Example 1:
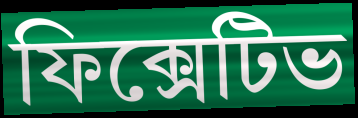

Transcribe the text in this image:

ফিক্সেটিভ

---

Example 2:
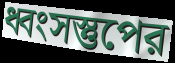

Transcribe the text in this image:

ধ্বংসস্তুপের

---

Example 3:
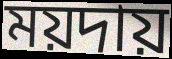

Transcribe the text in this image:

ময়দায়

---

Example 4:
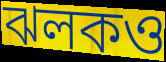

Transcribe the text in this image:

ঝলকও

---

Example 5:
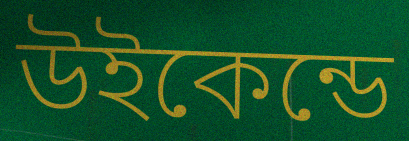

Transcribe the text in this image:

উইকেন্ডে